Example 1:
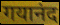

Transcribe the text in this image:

गयानंद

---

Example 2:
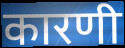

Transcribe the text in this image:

कारणी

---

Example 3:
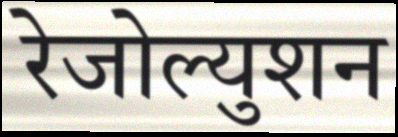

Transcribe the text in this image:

रेजोल्युशन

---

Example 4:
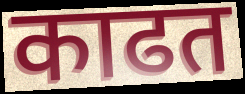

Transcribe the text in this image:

काढत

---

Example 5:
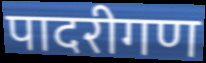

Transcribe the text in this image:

पादरीगण